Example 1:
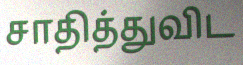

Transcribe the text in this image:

சாதித்துவிட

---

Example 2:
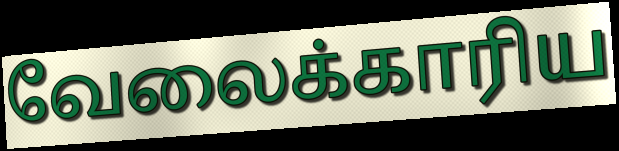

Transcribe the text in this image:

வேலைக்காரிய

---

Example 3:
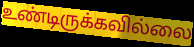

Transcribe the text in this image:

உண்டிருக்கவில்லை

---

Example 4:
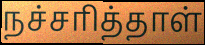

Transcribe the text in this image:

நச்சரித்தாள்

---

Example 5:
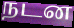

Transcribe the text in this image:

நடன